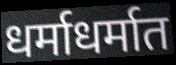
धर्माधर्मात